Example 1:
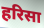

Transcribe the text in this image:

हरिसा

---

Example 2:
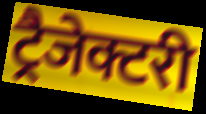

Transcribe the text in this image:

ट्रैजेक्टरी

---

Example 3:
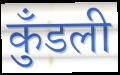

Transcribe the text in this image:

कुँडली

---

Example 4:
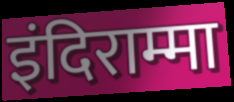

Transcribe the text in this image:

इंदिराम्मा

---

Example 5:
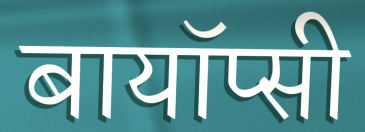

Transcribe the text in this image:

बायॉप्सी